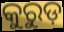
କୁରୁଡ଼